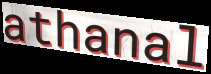
athanal